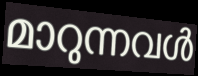
മാറുന്നവൾ